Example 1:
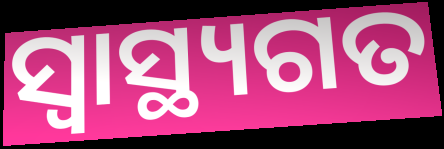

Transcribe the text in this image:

ସ୍ବାସ୍ଥ୍ୟଗତ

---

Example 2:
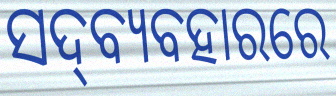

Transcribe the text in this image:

ସଦ୍‍ବ୍ୟବହାରରେ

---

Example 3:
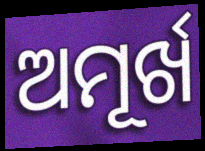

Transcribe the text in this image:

ଅମୂର୍ଖ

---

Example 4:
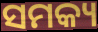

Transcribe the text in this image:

ସମକ୍ୟ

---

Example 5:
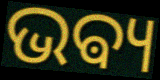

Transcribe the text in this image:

ଭଵ୍ୟ